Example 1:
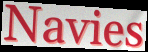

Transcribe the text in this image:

Navies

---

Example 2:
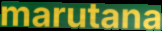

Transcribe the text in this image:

marutana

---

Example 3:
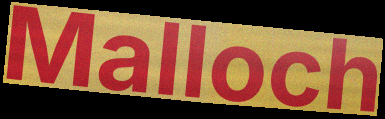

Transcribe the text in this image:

Malloch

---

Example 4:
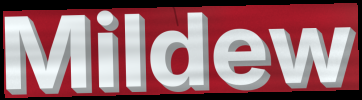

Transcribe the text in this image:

Mildew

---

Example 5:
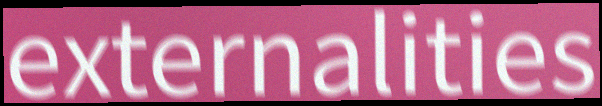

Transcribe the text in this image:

externalities